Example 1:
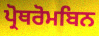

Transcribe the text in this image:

ਪ੍ਰੋਥਰੋਮਬਿਨ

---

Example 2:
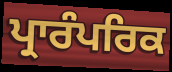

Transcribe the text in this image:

ਪ੍ਰਾਰੰਪਰਿਕ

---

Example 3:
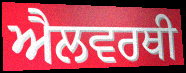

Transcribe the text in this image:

ਐਲਵਰਥੀ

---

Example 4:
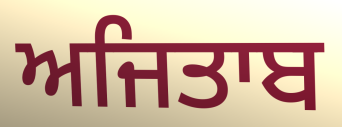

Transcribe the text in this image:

ਅਜਿਤਾਬ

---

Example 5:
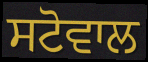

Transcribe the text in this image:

ਸਟੋਵਾਲ